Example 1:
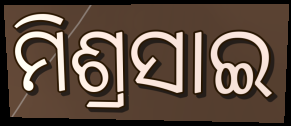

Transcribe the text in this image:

ମିଶ୍ରସାଇ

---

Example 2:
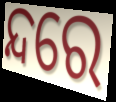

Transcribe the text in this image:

ନ୍ଦରେ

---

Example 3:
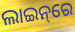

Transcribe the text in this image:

ଲାଇନ୍‌ରେ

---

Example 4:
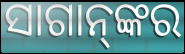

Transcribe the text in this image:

ସାଗାନ୍‌ଙ୍କର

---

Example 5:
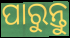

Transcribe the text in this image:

ପାରୁନ୍ତୁ